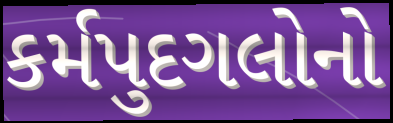
કર્મપુદગલોનો